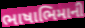
ભાષાભિમાની